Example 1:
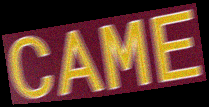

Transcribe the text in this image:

CAME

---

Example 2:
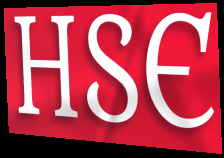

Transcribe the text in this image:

HSE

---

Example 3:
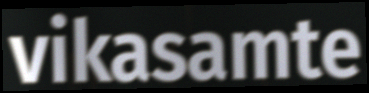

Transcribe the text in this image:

vikasamte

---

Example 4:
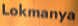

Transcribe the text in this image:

Lokmanya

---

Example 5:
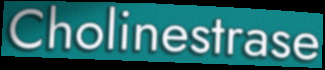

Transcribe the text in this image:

Cholinestrase